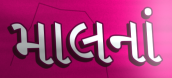
માલનાં